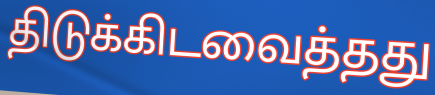
திடுக்கிடவைத்தது